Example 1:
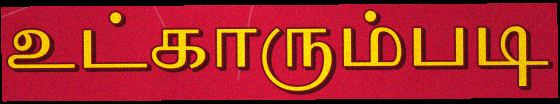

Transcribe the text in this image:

உட்காரும்படி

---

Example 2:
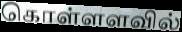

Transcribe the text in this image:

கொள்ளளவில்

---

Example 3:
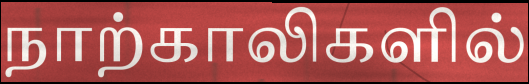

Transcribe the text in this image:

நாற்காலிகளில்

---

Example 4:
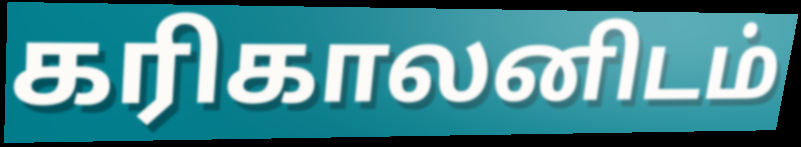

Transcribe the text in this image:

கரிகாலனிடம்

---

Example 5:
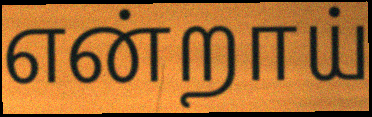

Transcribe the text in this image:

என்றாய்